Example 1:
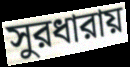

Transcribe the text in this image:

সুরধারায়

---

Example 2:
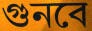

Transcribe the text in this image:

গুনবে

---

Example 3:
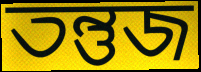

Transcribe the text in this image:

তন্তুজ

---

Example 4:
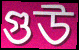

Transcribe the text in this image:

গুউ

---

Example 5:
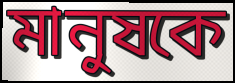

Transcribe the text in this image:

মানুষকে